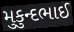
મુકુન્દભાઈ